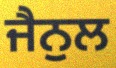
ਜੈਨੁਲ